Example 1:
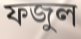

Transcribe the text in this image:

ফজুল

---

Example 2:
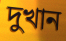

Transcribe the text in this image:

দুখান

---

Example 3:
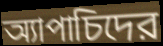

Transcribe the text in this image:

অ্যাপাচিদের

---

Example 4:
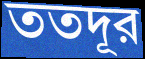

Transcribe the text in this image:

ততদূর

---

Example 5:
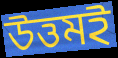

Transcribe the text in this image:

উত্তমই